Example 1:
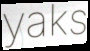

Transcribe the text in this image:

yaks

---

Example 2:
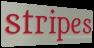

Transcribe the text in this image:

stripes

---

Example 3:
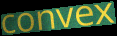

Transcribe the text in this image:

convex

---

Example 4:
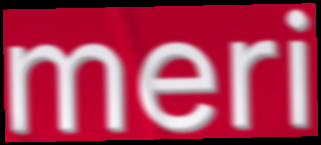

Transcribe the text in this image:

meri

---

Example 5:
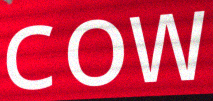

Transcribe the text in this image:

cow